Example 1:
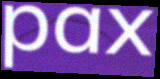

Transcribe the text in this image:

pax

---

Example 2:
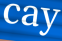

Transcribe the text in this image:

cay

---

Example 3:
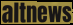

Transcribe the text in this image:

altnews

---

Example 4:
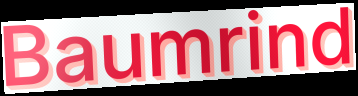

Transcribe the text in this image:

Baumrind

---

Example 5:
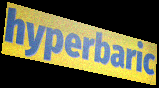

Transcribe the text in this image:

hyperbaric